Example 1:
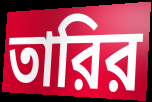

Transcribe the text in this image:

তারির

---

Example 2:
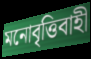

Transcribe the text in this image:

মনোবৃত্তিবাহী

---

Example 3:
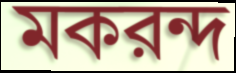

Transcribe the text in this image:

মকরন্দ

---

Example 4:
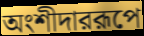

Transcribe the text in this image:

অংশীদাররূপে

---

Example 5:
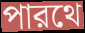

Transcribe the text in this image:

পারথে